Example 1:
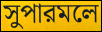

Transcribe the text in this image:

সুপারমলে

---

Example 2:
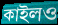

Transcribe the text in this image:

কাইলও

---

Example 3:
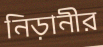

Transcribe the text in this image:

নিড়ানীর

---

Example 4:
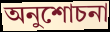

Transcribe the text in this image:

অনুশোচনা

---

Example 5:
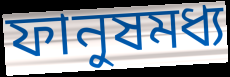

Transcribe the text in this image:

ফানুষমধ্য